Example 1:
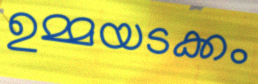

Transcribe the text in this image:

ഉമ്മയടക്കം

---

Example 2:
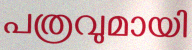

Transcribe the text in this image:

പത്രവുമായി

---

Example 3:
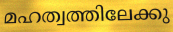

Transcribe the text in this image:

മഹത്വത്തിലേക്കു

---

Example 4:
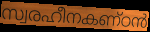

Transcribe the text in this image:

സ്വരഹീനകണ്ഠൻ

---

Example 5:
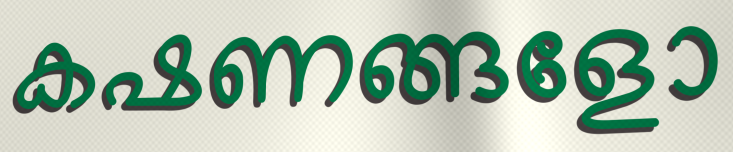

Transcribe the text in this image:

കഷണങ്ങളോ